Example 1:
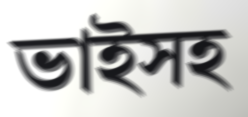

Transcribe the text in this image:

ভাইসহ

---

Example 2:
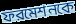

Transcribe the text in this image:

ফরমেশনকে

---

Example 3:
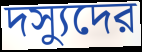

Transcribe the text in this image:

দস্যুদের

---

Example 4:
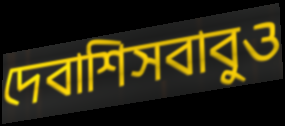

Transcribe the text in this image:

দেবাশিসবাবুও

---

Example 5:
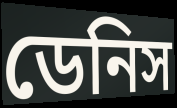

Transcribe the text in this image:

ডেনিস